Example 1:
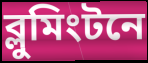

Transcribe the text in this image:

ব্লুমিংটনে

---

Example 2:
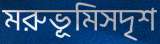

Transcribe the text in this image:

মরুভূমিসদৃশ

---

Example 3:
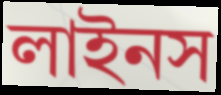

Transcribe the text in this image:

লাইনস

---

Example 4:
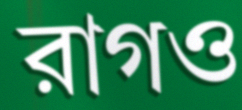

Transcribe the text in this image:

রাগও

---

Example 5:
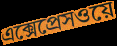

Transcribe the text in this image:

এক্সেপ্রেসওয়ে